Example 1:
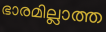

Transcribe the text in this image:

ഭാരമില്ലാത്ത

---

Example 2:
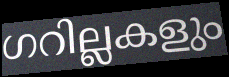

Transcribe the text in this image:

ഗറില്ലകളും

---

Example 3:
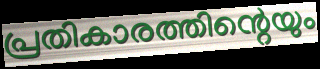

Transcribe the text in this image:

പ്രതികാരത്തിന്റെയും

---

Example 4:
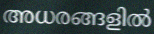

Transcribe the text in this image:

അധരങ്ങളിൽ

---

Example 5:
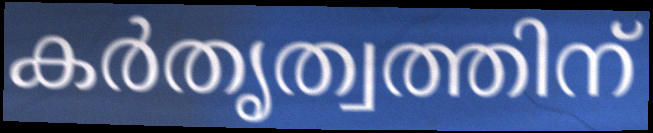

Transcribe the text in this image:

കർതൃത്വത്തിന്